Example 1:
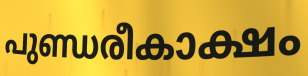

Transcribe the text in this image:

പുണ്ഡരീകാക്ഷം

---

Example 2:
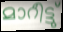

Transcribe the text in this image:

മാറീട്ടു്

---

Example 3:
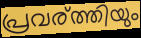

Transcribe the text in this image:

പ്രവര്ത്തിയും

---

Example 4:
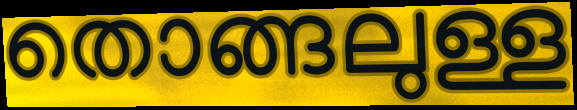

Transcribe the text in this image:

തൊങ്ങലുള്ള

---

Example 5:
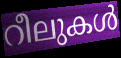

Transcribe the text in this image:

റീലുകൾ